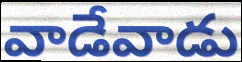
వాడేవాడు